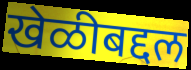
खेळीबद्दल